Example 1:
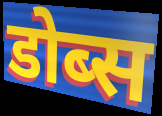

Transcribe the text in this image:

डोब्स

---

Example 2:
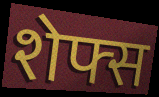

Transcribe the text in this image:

शेफ्स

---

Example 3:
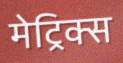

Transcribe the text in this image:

मेट्रिक्स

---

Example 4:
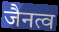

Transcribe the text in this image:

जैनत्व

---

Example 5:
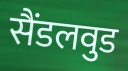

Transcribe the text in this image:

सैंडलवुड